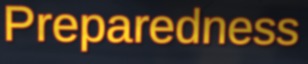
Preparedness